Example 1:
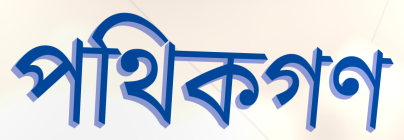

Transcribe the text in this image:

পথিকগণ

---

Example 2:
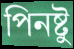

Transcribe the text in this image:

পিনষ্টু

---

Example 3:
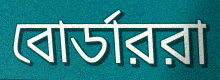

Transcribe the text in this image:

বোর্ডাররা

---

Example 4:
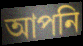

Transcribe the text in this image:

আপনি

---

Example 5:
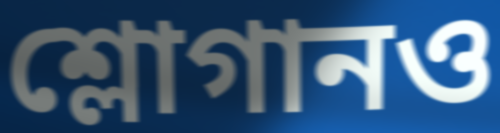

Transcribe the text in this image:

শ্লোগানও